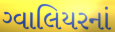
ગ્વાલિયરનાં